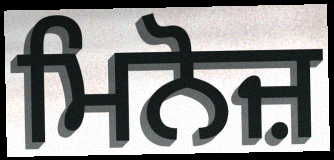
ਮਿਨੋਜ਼